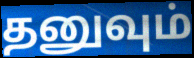
தனுவும்